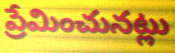
ప్రేమించునట్లు